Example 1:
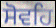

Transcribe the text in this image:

ਸੋਵਹਿ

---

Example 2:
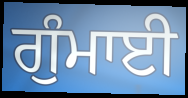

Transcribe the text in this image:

ਗੁੰਮਾਈ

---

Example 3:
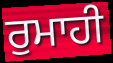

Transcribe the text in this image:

ਰੁਮਾਹੀ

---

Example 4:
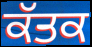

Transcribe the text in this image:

ਕੱਤਕ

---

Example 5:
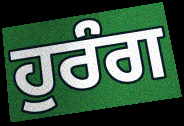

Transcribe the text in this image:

ਹੁਰੰਗ